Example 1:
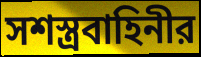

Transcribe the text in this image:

সশস্ত্রবাহিনীর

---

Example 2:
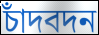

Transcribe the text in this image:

চাঁদবদন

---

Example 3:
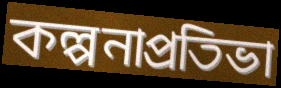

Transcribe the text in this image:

কল্পনাপ্রতিভা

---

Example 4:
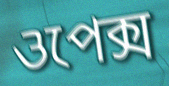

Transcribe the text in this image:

ওপেক্স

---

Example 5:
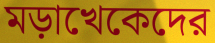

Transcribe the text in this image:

মড়াখেকেদের